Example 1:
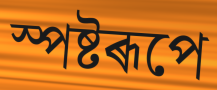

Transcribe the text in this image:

স্পষ্টৰূপে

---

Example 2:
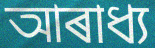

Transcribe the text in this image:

আৰাধ্য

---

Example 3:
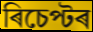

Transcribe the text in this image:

ৰিচেপ্টৰ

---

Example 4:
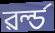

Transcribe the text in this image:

ৱৰ্ল্ড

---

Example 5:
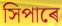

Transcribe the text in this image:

সিপাৰে